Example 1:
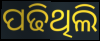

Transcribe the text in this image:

ପଢିଥିଲି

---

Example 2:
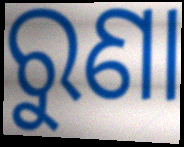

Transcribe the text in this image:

ରୁଣା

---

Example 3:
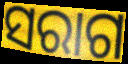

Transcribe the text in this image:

ସରାଗ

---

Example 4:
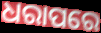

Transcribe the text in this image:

ଧରାପରେ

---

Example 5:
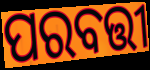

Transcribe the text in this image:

ପରବତ୍ତୀ